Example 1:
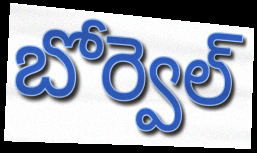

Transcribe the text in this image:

బోర్వెల్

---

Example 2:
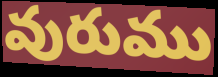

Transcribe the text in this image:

వురుము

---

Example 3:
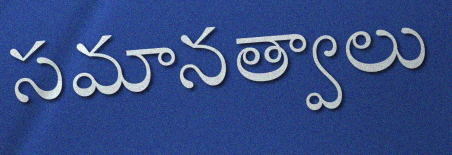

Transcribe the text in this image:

సమానత్వాలు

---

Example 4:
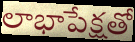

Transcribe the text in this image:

లాభాపేక్షతో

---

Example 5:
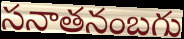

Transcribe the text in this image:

సనాతనంబగు